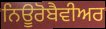
ਨਿਊਰੋਬੈਵੀਅਰ